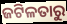
ଜଟିଳତାରୁ